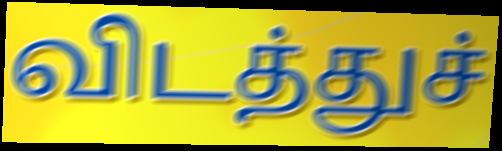
விடத்துச்